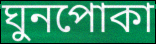
ঘুনপোকা